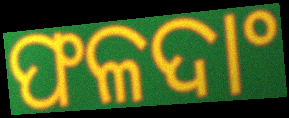
ଫଳଦାଂ